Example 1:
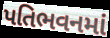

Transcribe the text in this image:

પતિભવનમાં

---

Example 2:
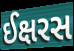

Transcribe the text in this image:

ઈક્ષરસ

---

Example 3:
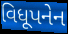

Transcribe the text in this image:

વિધૂપનેન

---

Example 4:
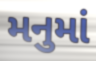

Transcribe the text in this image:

મનુમાં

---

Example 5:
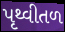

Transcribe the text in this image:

પૃથ્વીતળ